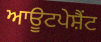
ਆਊਟਪੇਸ਼ੈਂਟ